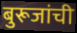
बुरूजांची